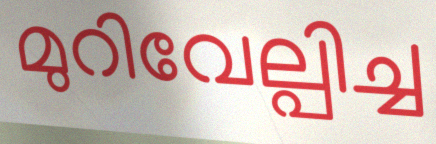
മുറിവേല്പിച്ച